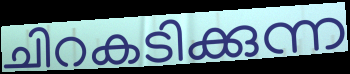
ചിറകടിക്കുന്ന